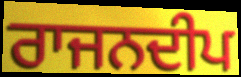
ਰਾਜਨਦੀਪ